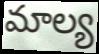
మాల్య